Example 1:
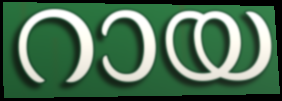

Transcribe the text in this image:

റായ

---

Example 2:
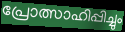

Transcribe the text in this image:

പ്രോത്സാഹിപ്പിച്ചും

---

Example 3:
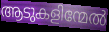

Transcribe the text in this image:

ആടുകളിന്മേൽ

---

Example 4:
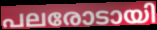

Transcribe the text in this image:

പലരോടായി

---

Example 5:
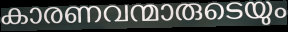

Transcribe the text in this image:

കാരണവന്മാരുടെയും